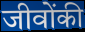
जीवोंकी